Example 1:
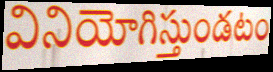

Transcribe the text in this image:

వినియోగిస్తుండటం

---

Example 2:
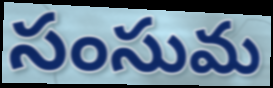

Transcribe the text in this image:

సంసుమ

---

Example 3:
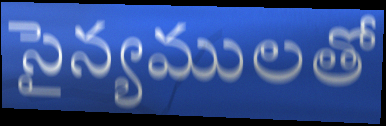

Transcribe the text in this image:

సైన్యములతో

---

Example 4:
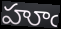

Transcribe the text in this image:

హూఁ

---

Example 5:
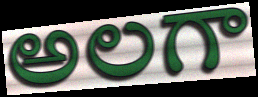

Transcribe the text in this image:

అలగా